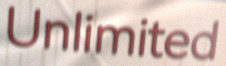
Unlimited